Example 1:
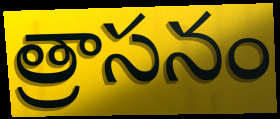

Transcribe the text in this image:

త్రాసనం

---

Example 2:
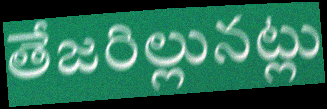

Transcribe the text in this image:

తేజరిల్లునట్లు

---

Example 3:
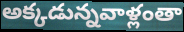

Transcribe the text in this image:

అక్కడున్నవాళ్లంతా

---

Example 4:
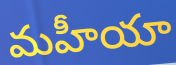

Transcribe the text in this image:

మహీయా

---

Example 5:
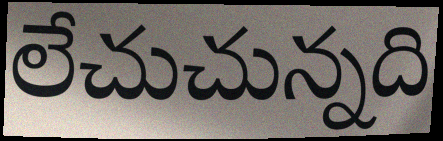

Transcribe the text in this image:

లేచుచున్నది